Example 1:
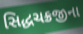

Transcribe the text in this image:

સિદ્ધચક્રજીના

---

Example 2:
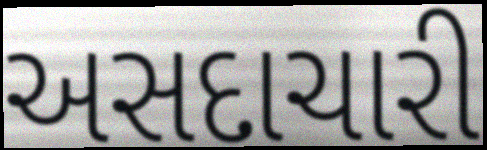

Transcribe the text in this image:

અસદાચારી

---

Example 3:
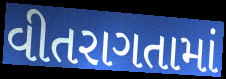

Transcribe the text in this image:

વીતરાગતામાં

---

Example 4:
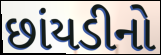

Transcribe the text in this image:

છાંયડીનો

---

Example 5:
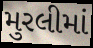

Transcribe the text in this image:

મુરલીમાં